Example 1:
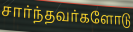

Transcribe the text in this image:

சார்ந்தவர்களோடு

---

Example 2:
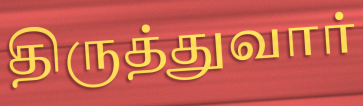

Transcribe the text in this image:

திருத்துவார்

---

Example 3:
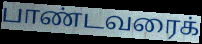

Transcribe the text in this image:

பாண்டவரைக்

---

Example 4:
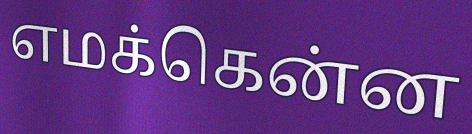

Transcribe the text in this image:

எமக்கென்ன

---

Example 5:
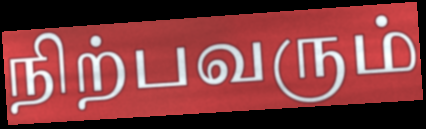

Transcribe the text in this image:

நிற்பவரும்